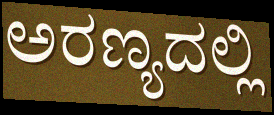
ಅರಣ್ಯದಲ್ಲಿ